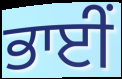
ਭਾਈੰ